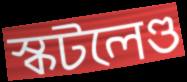
স্কটলেণ্ড